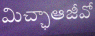
మిచ్ఛాఆజీవో